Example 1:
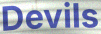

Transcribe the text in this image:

Devils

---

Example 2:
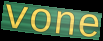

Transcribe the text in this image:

vone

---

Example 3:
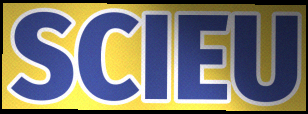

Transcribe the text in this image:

SCIEU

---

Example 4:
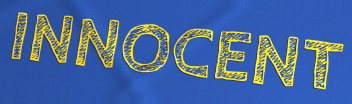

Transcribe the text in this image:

INNOCENT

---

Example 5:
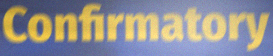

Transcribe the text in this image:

Confirmatory